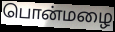
பொன்மழை